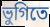
ভুগিতে